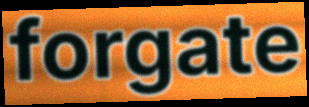
forgate